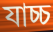
যাচ্চ